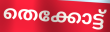
തെക്കോട്ട്